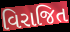
વિરાજિત